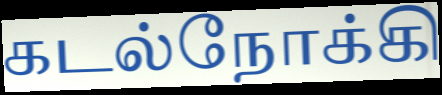
கடல்நோக்கி